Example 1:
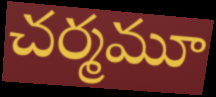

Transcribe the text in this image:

చర్మమూ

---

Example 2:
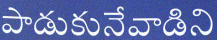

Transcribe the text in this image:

పాడుకునేవాడిని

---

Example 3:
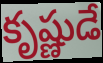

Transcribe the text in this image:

కృష్ణుడే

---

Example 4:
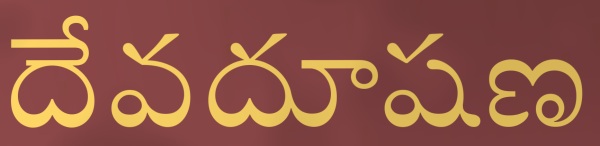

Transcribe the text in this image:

దేవదూషణ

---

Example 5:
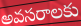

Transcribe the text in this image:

అవసరాలకు